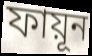
ফায়ূন